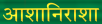
आशानिराशा